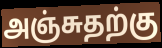
அஞ்சுதற்கு